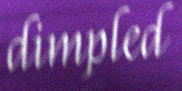
dimpled